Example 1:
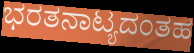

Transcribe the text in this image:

ಭರತನಾಟ್ಯದಂತಹ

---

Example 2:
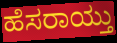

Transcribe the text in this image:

ಹೆಸರಾಯ್ತು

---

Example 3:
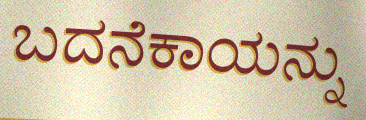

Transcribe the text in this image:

ಬದನೆಕಾಯನ್ನು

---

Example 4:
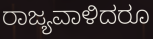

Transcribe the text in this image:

ರಾಜ್ಯವಾಳಿದರೂ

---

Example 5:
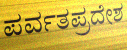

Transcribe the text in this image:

ಪರ್ವತಪ್ರದೇಶ